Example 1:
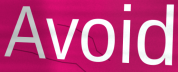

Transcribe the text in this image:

Avoid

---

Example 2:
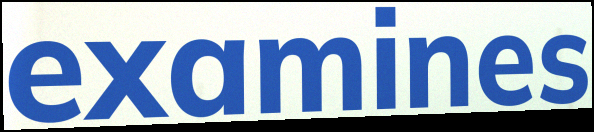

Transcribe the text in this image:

examines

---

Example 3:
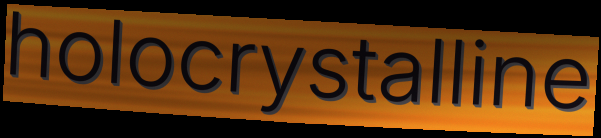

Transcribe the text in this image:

holocrystalline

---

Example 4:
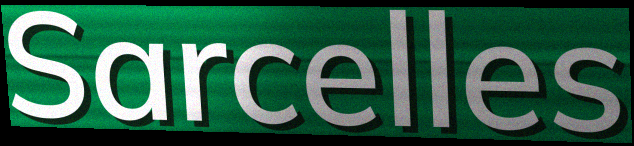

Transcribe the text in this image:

Sarcelles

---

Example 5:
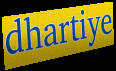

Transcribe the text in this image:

dhartiye